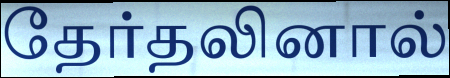
தேர்தலினால்